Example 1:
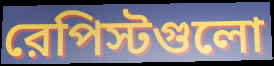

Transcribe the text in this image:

রেপিস্টগুলো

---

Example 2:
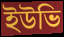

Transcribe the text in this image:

ইউভি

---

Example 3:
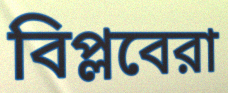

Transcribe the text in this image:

বিপ্লবেরা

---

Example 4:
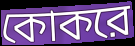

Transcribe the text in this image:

কোকরে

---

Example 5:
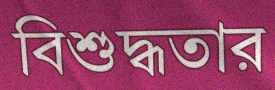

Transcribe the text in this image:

বিশুদ্ধতার